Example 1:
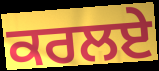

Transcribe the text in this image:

ਕਰਲਏ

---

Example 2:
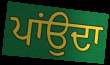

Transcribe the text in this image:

ਪਾਂਉਦਾ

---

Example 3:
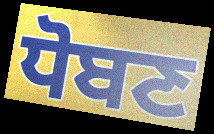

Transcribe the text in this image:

ਧੋਬਣ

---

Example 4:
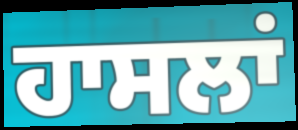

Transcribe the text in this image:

ਹਾਸਲਾਂ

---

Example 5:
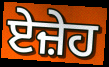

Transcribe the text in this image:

ਏਜ਼ੇਹ